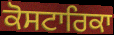
ਕੋਸਟਾਰਿਕਾ